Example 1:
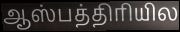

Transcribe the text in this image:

ஆஸ்பத்திரியில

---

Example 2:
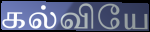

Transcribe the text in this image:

கல்வியே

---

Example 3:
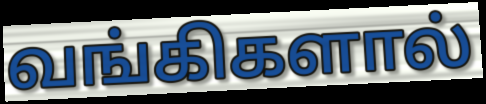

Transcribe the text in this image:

வங்கிகளால்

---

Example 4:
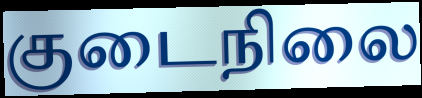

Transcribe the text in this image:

குடைநிலை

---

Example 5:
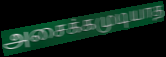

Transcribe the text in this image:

அசைக்கமுடியாத